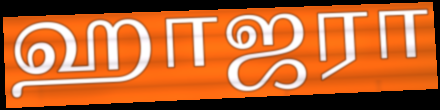
ஹாஜரா